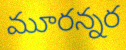
మూరన్నర